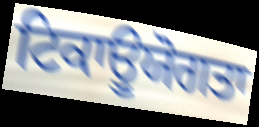
ਟਿਕਾਊਯੋਗਤਾ